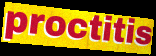
proctitis